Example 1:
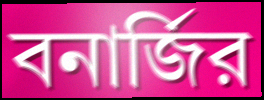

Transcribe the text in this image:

বনার্জির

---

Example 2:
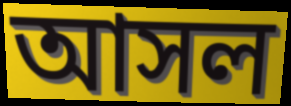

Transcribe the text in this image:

আসল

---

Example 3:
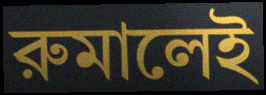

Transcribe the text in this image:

রুমালেই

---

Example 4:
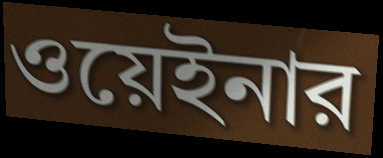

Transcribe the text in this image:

ওয়েইনার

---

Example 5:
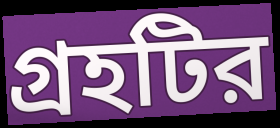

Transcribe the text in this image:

গ্রহটির